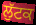
ਲੁੱਟਕ